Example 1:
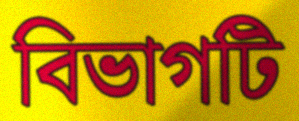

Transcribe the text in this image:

বিভাগটি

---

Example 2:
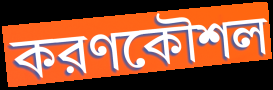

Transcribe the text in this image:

করণকৌশল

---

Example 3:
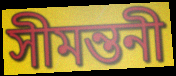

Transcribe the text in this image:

সীমন্তনী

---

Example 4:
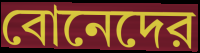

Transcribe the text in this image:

বোনেদের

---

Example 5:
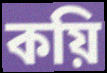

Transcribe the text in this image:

কয়ি